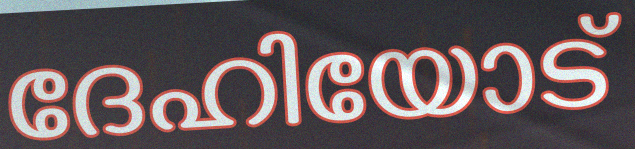
ദേഹിയോട്